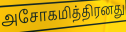
அசோகமித்திரனது